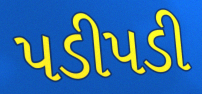
પડીપડી